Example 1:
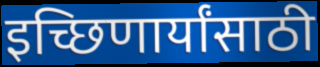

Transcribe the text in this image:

इच्छिणार्यांसाठी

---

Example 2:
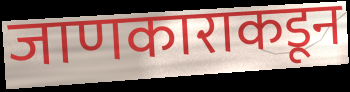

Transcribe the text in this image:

जाणकाराकडून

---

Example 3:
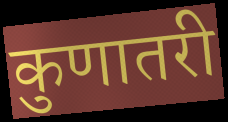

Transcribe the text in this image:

कुणातरी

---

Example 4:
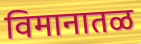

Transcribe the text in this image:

विमानातळ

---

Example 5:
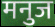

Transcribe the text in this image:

मनुज